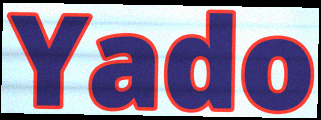
Yado